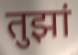
तुझां